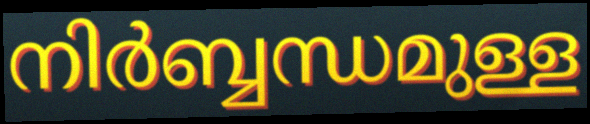
നിർബ്ബന്ധമുള്ള